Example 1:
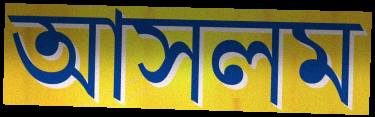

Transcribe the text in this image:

আসলম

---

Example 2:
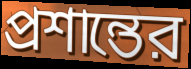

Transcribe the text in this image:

প্রশান্তের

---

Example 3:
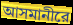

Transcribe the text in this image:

আসমানীরে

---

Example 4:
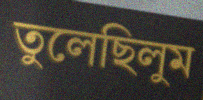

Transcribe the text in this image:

তুলেছিলুম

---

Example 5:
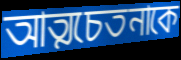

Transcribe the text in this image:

আত্মচেতনাকে